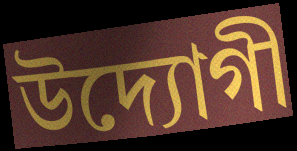
উদ্যোগী